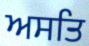
ਅਸਤਿ